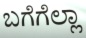
ಬಗೆಗೆಲ್ಲಾ